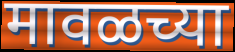
मावळच्या